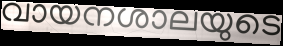
വായനശാലയുടെ